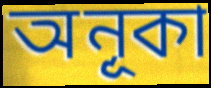
অনূকা